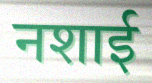
नशाई